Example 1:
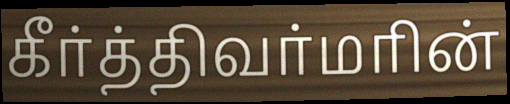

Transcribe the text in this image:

கீர்த்திவர்மரின்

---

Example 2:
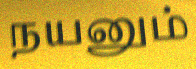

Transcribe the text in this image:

நயனும்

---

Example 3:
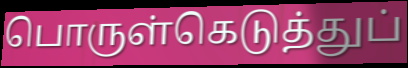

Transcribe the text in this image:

பொருள்கெடுத்துப்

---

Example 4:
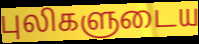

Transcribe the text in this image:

புலிகளுடைய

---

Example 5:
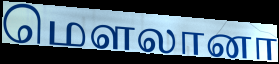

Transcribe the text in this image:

மௌலானா